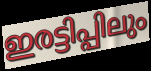
ഇരട്ടിപ്പിലും